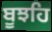
ਬੂਝਹਿ